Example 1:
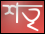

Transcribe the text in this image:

শতৃ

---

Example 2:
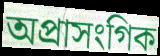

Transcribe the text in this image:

অপ্ৰাসংগিক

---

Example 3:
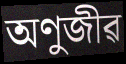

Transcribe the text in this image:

অণুজীৱ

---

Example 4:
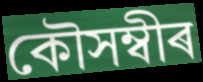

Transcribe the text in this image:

কৌসম্বীৰ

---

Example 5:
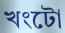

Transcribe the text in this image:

খংটো